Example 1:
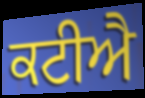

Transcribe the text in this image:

ਕਟੀਐ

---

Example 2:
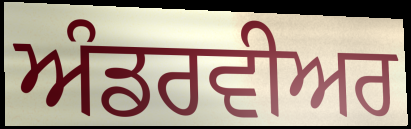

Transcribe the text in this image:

ਅੰਡਰਵੀਅਰ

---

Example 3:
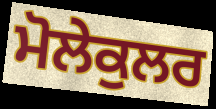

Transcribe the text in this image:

ਮੋਲੇਕੁਲਰ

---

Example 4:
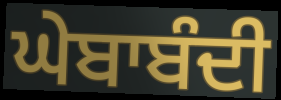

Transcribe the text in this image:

ਘੇਬਾਬੰਦੀ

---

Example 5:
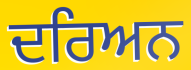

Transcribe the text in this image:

ਦਰਿਅਨ